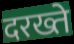
दरख्ते